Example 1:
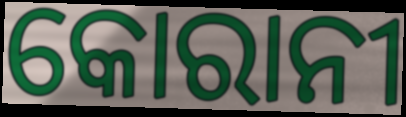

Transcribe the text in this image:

କୋରାନୀ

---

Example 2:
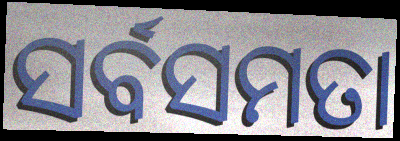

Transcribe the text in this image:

ସର୍ବସମତା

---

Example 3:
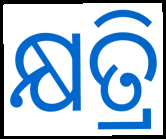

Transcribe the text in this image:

କ୍ଷତ୍ରି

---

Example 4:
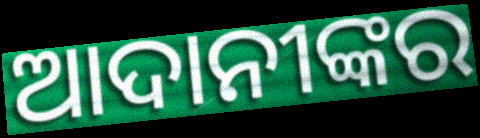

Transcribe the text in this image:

ଆଦାନୀଙ୍କର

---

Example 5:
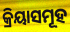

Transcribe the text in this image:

କ୍ରିୟାସମୂହ